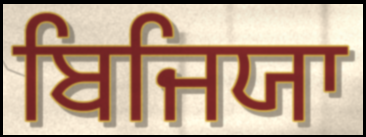
ਬਿਜਿਯਾ